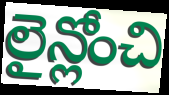
లైన్లోంచి